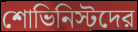
শোভিনিস্টদের